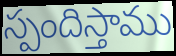
స్పందిస్తాము